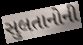
સુલતાનોની